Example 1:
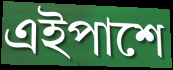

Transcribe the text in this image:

এইপাশে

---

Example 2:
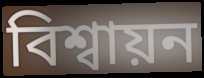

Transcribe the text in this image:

বিশ্বায়ন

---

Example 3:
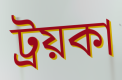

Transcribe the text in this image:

ট্রয়কা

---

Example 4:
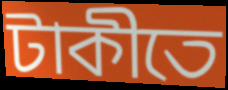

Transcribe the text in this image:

টাকীতে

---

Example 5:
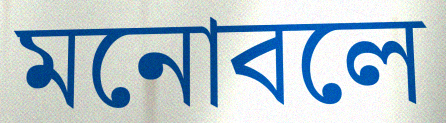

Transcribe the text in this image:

মনোবলে